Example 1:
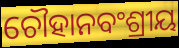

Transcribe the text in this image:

ଚୌହାନବଂଶ୍ରୀୟ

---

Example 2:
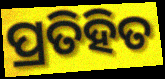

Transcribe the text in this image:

ପ୍ରତିହିତ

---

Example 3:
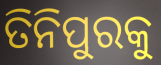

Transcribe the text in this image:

ତିନିପୁରକୁ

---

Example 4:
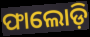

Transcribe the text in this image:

ଫାଲୋଡ଼ି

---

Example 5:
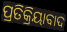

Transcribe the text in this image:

ପ୍ରତିକ୍ରିୟାବାଦ